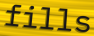
fills